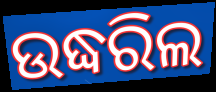
ଉଦ୍ଧରିଲ